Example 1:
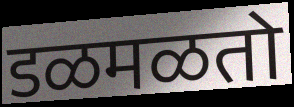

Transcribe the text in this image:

डळमळतो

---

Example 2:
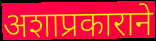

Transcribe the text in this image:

अशाप्रकाराने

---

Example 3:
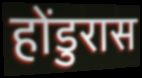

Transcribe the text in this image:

होंडुरास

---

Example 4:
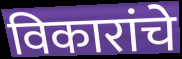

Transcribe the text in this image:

विकारांचे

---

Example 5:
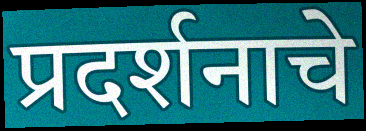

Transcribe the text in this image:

प्रदर्शनाचे